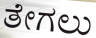
ತೇಗಲು